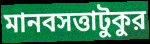
মানবসত্তাটুকুর